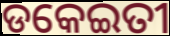
ଡକେଇତୀ